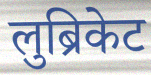
लुब्रिकेट